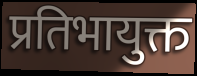
प्रतिभायुक्त